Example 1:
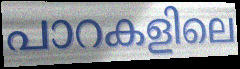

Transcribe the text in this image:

പാറകളിലെ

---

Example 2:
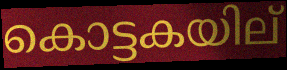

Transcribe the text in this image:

കൊട്ടകയില്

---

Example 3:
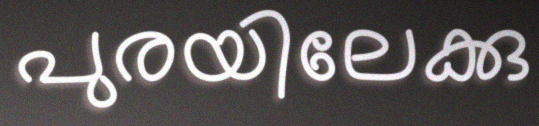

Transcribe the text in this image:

പുരയിലേക്കു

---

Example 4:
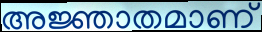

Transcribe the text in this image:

അജ്ഞാതമാണ്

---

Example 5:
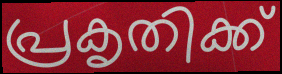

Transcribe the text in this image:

പ്രകൃതിക്ക്